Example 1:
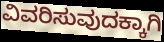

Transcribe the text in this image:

ವಿವರಿಸುವುದಕ್ಕಾಗಿ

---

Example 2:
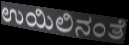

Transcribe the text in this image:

ಉಯಿಲಿನಂತೆ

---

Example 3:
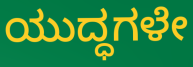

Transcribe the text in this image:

ಯುದ್ಧಗಳೇ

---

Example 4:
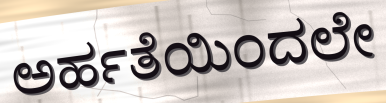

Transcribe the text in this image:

ಅರ್ಹತೆಯಿಂದಲೇ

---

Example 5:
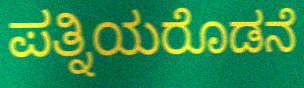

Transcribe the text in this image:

ಪತ್ನಿಯರೊಡನೆ